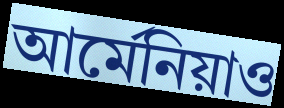
আর্মেনিয়াও